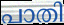
പാതി